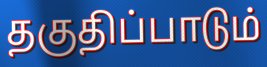
தகுதிப்பாடும்